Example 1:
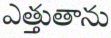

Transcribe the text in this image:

ఎత్తుతాను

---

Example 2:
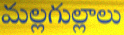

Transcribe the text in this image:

మల్లగుల్లాలు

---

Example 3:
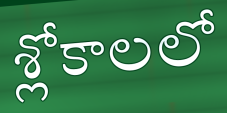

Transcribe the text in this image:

శ్లోకాలలో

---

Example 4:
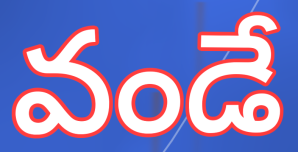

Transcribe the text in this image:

వండే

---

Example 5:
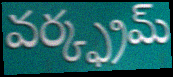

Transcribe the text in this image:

వర్క్ఫ్రమ్